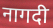
नागदी